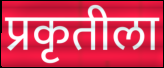
प्रकृतीला